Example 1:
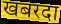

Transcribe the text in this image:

खबरदा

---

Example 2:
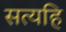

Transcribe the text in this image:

सत्यहि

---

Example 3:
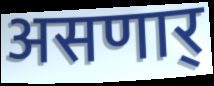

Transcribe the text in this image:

असणार्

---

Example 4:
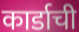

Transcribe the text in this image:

कार्डाची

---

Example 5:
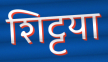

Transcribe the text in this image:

शिट्टया